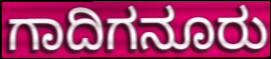
ಗಾದಿಗನೂರು